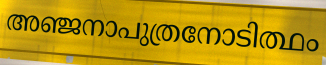
അഞ്ജനാപുത്രനോടിത്ഥം